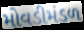
મોવડીમંડળ